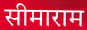
सीमाराम